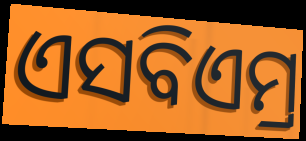
ଏସବିଏମ୍ର